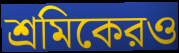
শ্রমিকেরও